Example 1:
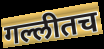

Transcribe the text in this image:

गल्लीतच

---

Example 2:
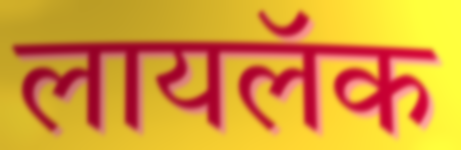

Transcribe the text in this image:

लायलॅक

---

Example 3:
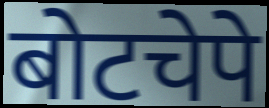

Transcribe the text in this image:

बोटचेपे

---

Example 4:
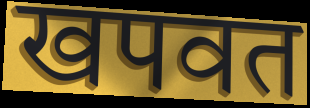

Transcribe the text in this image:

खपवत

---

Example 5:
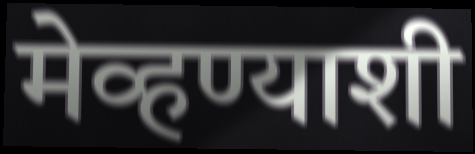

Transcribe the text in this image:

मेव्हण्याशी